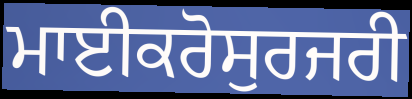
ਮਾਈਕਰੋਸੁਰਜਰੀ